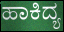
ಹಾಕಿದ್ಯ